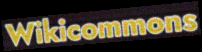
Wikicommons